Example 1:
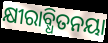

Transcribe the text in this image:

କ୍ଷୀରାବ୍ଧିତନୟା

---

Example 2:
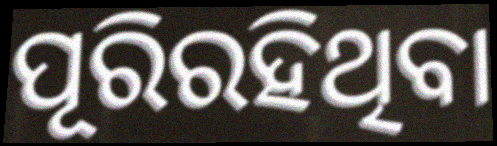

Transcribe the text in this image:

ପୂରିରହିଥିବା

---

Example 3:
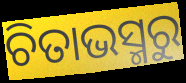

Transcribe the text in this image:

ଚିତାଭସ୍ମରୁ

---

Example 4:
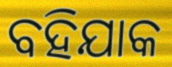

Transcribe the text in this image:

ବହିଯାକ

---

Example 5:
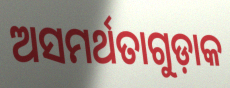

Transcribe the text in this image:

ଅସମର୍ଥତାଗୁଡ଼ାକ